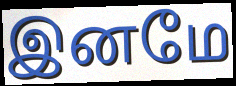
இனமே